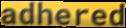
adhered